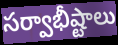
సర్వాభీష్టాలు